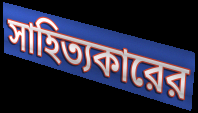
সাহিত্যকারের